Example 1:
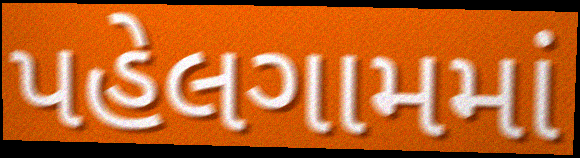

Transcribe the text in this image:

પહેલગામમાં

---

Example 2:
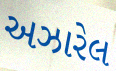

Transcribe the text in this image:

અઝારેલ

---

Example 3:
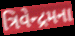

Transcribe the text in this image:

ત્રિવેન્દ્રમના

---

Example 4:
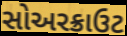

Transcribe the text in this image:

સોઅરક્રાઉટ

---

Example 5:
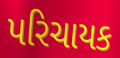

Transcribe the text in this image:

પરિચાયક